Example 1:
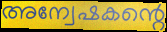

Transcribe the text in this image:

അന്വേഷകന്റെ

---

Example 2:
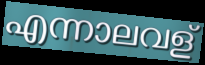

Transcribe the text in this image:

എന്നാലവള്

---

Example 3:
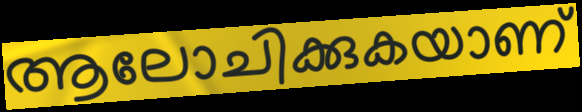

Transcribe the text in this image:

ആലോചിക്കുകയാണ്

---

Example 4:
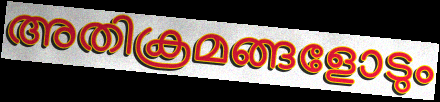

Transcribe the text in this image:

അതിക്രമങ്ങളോടും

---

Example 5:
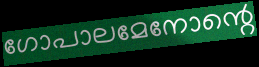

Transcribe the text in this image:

ഗോപാലമേനോന്റെ